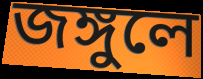
জঙ্গুলে